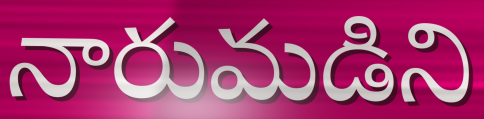
నారుమడిని